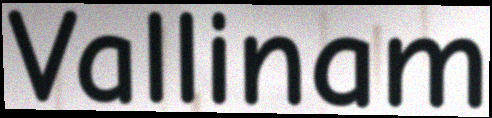
Vallinam